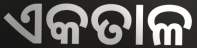
ଏକତାଳ